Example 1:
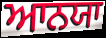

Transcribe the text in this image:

ਆਨਯਾ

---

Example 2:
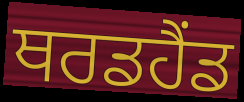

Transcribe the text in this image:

ਥਰਡਹੈਂਡ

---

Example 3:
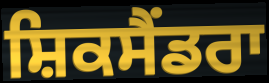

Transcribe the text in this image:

ਸ਼ਿਕਸੈਂਡਰਾ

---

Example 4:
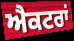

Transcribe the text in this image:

ਐਕਟਰਾਂ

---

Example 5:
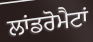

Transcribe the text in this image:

ਲਾਂਡਰੋਮੈਟਾਂ